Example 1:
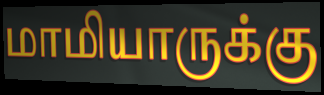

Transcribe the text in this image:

மாமியாருக்கு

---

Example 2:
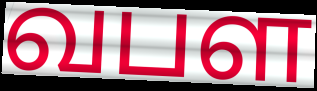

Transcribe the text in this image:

வபள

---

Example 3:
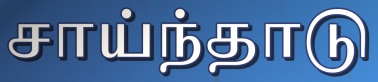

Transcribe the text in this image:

சாய்ந்தாடு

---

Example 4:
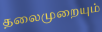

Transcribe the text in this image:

தலைமுறையும்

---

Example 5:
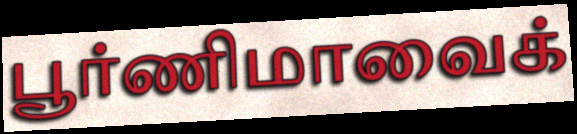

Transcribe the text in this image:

பூர்ணிமாவைக்